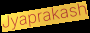
Jyaprakash